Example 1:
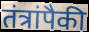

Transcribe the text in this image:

तंत्रांपैकी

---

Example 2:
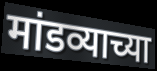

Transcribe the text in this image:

मांडव्याच्या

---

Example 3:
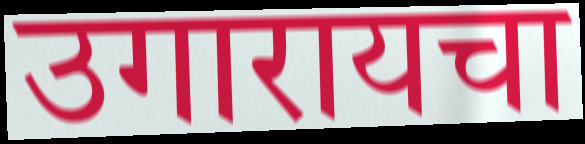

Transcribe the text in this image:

उगारायचा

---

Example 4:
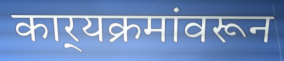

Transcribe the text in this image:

कार्यक्रमांवरून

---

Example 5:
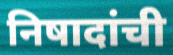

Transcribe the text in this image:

निषादांची